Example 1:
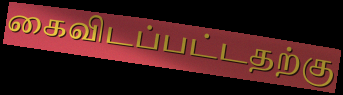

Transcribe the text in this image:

கைவிடப்பட்டதற்கு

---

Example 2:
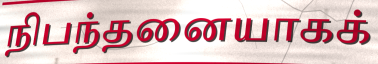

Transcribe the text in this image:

நிபந்தனையாகக்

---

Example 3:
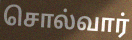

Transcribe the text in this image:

சொல்வார்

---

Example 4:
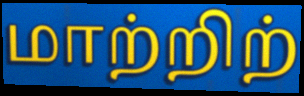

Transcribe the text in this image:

மாற்றிற்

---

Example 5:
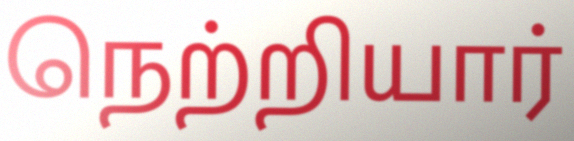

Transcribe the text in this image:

நெற்றியார்